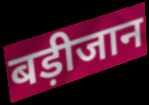
बड़ीजान